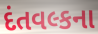
દંતવલ્કના